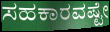
ಸಹಕಾರವಷ್ಟೇ